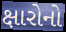
ક્ષારોનો